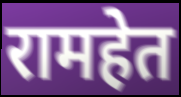
रामहेत